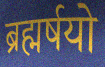
ब्रह्मर्षयो